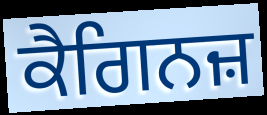
ਕੈਗਿਨਜ਼